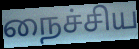
நைச்சிய